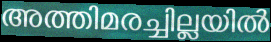
അത്തിമരച്ചില്ലയിൽ